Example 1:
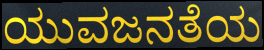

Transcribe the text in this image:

ಯುವಜನತೆಯ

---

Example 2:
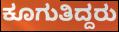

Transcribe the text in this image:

ಕೂಗುತಿದ್ದರು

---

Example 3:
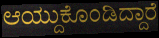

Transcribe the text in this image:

ಆಯ್ದುಕೊಂಡಿದ್ದಾರೆ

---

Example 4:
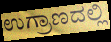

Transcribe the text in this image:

ಉಗ್ರಾಣದಲ್ಲಿ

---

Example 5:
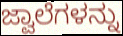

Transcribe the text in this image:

ಜ್ವಾಲೆಗಳನ್ನು